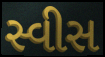
સ્વીસ